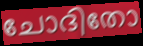
ചോദിതോ